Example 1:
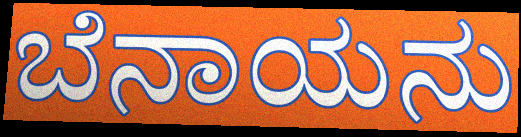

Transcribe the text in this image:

ಬೆನಾಯನು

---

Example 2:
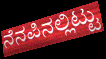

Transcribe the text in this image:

ನೆನಪಿನಲ್ಲಿಟ್ಟು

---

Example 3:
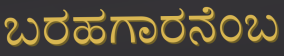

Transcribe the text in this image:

ಬರಹಗಾರನೆಂಬ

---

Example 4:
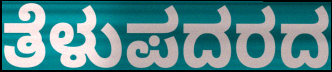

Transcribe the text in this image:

ತೆಳುಪದರದ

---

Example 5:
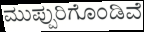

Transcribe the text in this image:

ಮುಪ್ಪುರಿಗೊಂಡಿವೆ